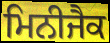
ਮਿਨੀਜੈਕ